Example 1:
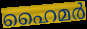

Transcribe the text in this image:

ഹൈമർ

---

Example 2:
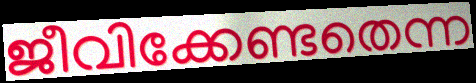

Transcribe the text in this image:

ജീവിക്കേണ്ടതെന്ന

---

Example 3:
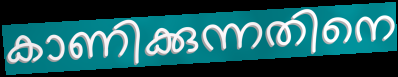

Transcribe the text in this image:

കാണിക്കുന്നതിനെ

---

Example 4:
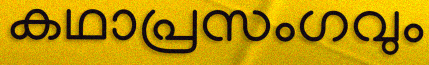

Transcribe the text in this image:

കഥാപ്രസംഗവും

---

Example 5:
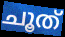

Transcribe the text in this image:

ചൂത്